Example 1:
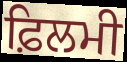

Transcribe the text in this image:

ਫ਼ਿਲਮੀ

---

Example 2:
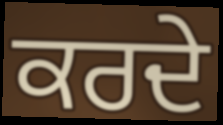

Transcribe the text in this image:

ਕਰਦੇ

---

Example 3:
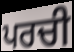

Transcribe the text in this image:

ਪਰਚੀ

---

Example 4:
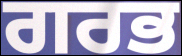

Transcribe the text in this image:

ਗਰਭ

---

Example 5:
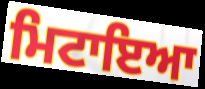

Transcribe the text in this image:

ਮਿਟਾਇਆ